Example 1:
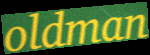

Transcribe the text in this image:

oldman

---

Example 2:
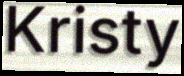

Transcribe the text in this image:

Kristy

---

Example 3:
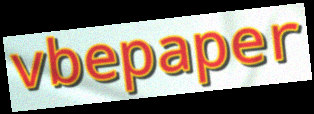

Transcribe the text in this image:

vbepaper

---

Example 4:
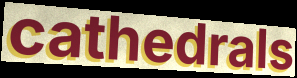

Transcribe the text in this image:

cathedrals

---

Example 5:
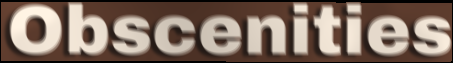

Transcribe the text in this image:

Obscenities